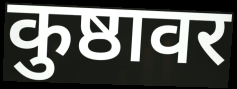
कुष्ठावर